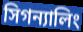
সিগন্যালিং